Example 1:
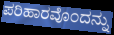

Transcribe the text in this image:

ಪರಿಹಾರವೊಂದನ್ನು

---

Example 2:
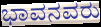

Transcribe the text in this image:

ಭಾವನವರು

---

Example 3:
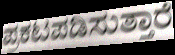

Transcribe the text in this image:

ಪ್ರಕಟಪಡಿಸುತ್ತಾರೆ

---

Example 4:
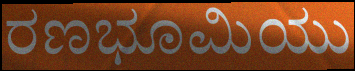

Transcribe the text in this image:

ರಣಭೂಮಿಯು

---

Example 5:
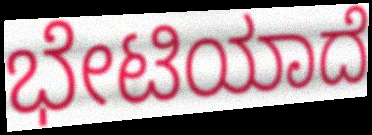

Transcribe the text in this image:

ಭೇಟಿಯಾದೆ